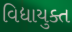
વિદ્યાયુક્ત